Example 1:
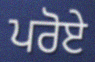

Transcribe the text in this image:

ਪਰੋਏ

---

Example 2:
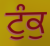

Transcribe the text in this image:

ਟੁੰਕੁ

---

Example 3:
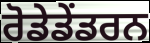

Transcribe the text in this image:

ਰੋਡੇਡੇਂਡਰਨ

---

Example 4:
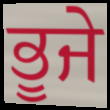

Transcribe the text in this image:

ਭੂਜੇ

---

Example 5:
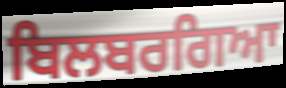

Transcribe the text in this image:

ਬਿਲਬਰਗਿਆ